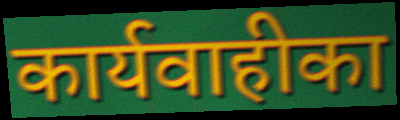
कार्यवाहीका